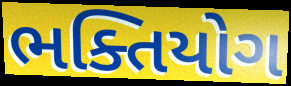
ભક્તિયોગ